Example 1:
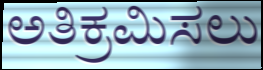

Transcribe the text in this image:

ಅತಿಕ್ರಮಿಸಲು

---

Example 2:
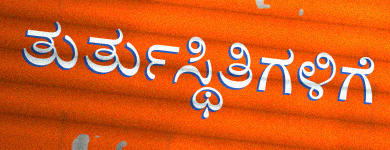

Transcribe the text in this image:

ತುರ್ತುಸ್ಥಿತಿಗಳಿಗೆ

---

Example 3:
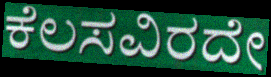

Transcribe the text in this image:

ಕೆಲಸವಿರದೇ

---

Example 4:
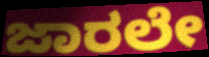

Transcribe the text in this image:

ಜಾರಲೇ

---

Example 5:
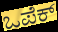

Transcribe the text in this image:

ಒಪೆಕ್